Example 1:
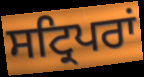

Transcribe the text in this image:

ਸਟ੍ਰਿਪਰਾਂ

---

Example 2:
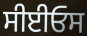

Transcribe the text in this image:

ਸੀਈਓਸ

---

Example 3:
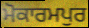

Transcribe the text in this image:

ਮੋਕਾਰਮਪੁਰ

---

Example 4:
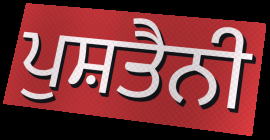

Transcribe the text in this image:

ਪੁਸ਼ਤੈਨੀ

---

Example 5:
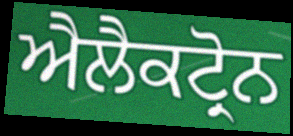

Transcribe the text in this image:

ਐਲੈਕਟ੍ਰੋਨ